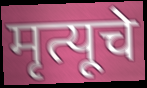
मृत्यूचे